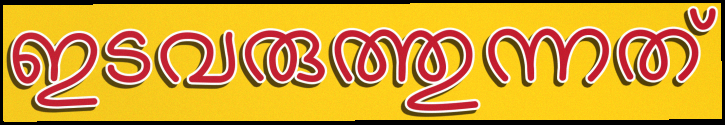
ഇടവരുത്തുന്നത്